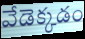
వేడెక్కడం